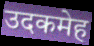
उदकमेह